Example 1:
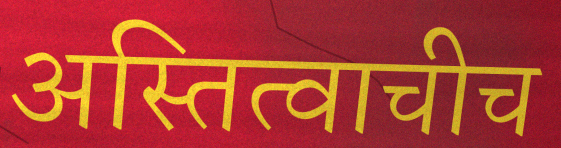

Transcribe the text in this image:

अस्तित्वाचीच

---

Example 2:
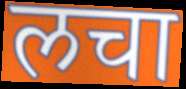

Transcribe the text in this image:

लचा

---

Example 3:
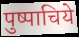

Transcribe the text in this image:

पुष्पाचिये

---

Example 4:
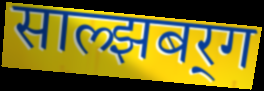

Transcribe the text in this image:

साल्झबर्ग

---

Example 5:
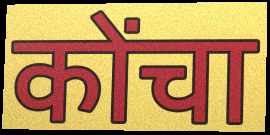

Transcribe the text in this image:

कोंचा